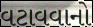
વટાવવાનો